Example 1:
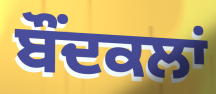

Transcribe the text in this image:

ਬੌਂਦਕਲਾਂ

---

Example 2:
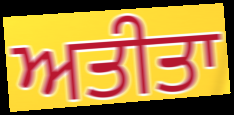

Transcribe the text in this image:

ਅਤੀਤਾ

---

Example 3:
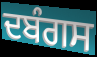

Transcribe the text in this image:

ਦਬੰਗਸ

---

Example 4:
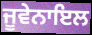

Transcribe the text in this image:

ਜੂਵੇਨਾਇਲ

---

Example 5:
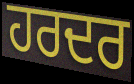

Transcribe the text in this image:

ਹਰਦਰ